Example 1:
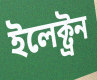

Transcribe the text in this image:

ইলেক্ট্রন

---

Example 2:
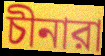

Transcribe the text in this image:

চীনারা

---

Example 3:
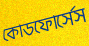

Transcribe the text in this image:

কোডফোর্সেস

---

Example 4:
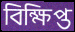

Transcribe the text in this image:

বিক্ষিপ্ত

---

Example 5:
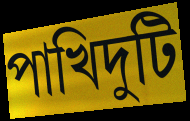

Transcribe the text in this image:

পাখিদুটি